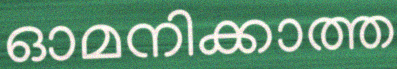
ഓമനിക്കാത്ത